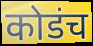
कोडंच